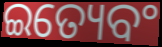
ଇତ୍ୟେବଂ